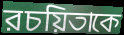
রচয়িতাকে